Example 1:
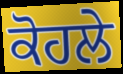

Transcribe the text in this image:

ਕੋਹਲੇ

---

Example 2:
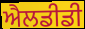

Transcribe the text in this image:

ਐਲਡੀਡੀ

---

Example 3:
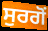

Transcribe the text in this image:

ਸੁਰਗੋਂ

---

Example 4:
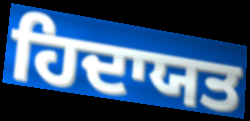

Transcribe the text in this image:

ਹਿਦਾਯਤ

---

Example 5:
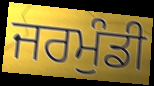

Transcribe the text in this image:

ਜਰਮੁੰਡੀ